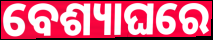
ବେଶ୍ୟାଘରେ